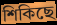
শিকিছে